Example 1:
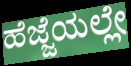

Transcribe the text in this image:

ಹೆಜ್ಜೆಯಲ್ಲೇ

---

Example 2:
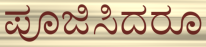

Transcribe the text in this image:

ಪೂಜಿಸಿದರೂ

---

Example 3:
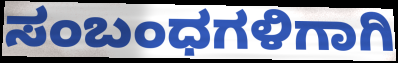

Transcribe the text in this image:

ಸಂಬಂಧಗಳಿಗಾಗಿ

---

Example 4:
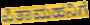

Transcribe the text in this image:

ಪಿತಾಮಹನಿಗೆ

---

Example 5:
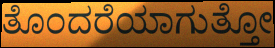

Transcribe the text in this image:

ತೊಂದರೆಯಾಗುತ್ತೋ